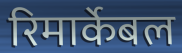
रिमार्केबल